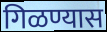
गिळण्यास